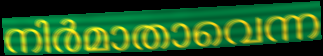
നിർമാതാവെന്ന